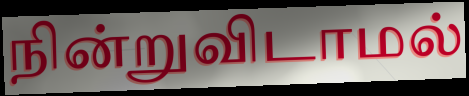
நின்றுவிடாமல்